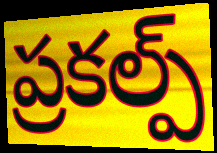
ప్రకల్ప్